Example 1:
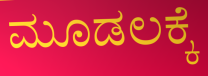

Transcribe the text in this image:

ಮೂಡಲಕ್ಕೆ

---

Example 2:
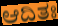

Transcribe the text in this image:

ಆದಿತಃ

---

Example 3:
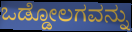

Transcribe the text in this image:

ಒಡ್ಡೋಲಗವನ್ನು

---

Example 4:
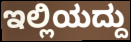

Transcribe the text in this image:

ಇಲ್ಲಿಯದ್ದು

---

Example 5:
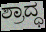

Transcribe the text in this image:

ಶ್ರಾದ್ಧ